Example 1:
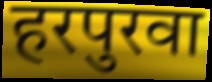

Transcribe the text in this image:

हरपुरवा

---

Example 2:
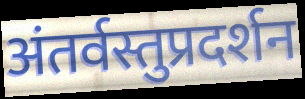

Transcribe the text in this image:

अंतर्वस्तुप्रदर्शन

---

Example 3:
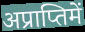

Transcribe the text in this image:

अप्राप्तिमें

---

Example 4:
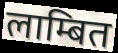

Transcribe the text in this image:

लाम्बित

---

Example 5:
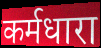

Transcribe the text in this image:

कर्मधारा